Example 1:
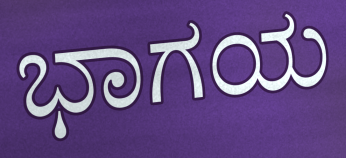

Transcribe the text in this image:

ಭಾಗಯ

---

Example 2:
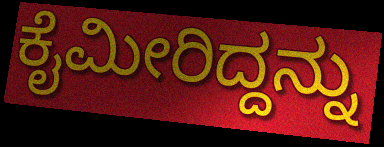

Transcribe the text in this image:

ಕೈಮೀರಿದ್ದನ್ನು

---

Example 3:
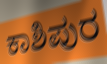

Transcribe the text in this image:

ಕಾಶಿಪುರ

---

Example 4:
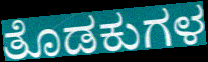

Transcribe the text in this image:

ತೊಡಕುಗಳ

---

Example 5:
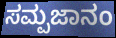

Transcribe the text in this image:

ಸಮ್ಪಜಾನಂ